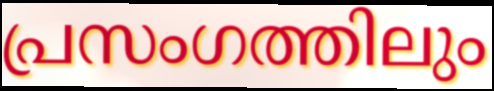
പ്രസംഗത്തിലും